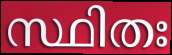
സ്ഥിതഃ